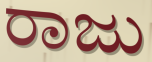
ರಾಜು